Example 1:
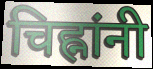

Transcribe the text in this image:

चिह्नांनी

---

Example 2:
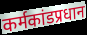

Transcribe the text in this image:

कर्मकांडप्रधान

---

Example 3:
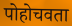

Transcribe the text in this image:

पोहोचवता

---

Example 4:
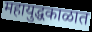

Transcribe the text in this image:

महायुद्धकाळात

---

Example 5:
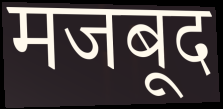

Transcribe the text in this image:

मजबूद